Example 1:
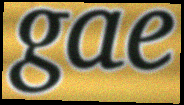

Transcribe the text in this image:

gae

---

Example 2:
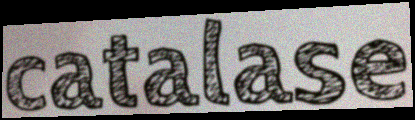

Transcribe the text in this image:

catalase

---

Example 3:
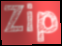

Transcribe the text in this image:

Zip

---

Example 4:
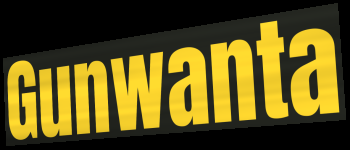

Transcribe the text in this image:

Gunwanta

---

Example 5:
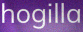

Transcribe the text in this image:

hogilla